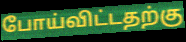
போய்விட்டதற்கு